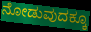
ನೋಡುವುದಕ್ಕೂ